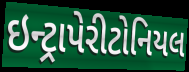
ઇન્ટ્રાપેરીટોનિયલ